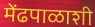
मेंढपाळाशी